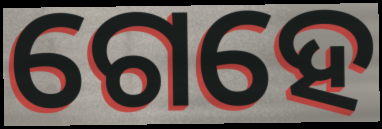
ଗେହେ